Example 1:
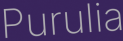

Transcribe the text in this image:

Purulia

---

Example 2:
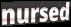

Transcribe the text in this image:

nursed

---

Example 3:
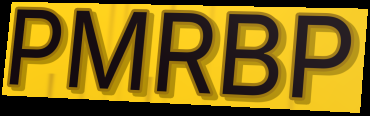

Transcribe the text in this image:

PMRBP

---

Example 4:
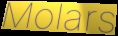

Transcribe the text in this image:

Molars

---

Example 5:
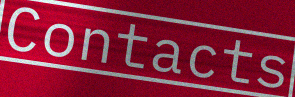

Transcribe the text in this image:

Contacts